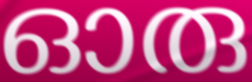
ഓരു